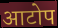
आटोप